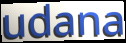
udana